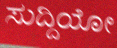
ಸುದ್ದಿಯೋ